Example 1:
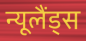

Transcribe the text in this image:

न्यूलैंड्स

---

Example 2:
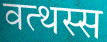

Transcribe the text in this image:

वत्थस्स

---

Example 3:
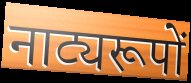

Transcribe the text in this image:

नाट्यरूपों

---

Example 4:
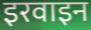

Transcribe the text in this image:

इरवाइन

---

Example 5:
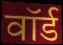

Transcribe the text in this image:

वॉर्ड